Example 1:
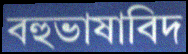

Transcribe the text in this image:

বহুভাষাবিদ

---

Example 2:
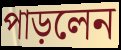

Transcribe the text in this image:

পাড়লেন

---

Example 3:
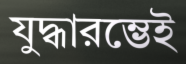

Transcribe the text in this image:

যুদ্ধারম্ভেই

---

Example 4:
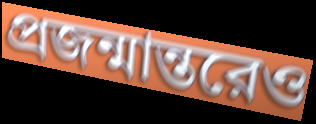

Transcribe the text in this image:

প্রজন্মান্তরেও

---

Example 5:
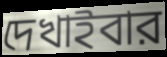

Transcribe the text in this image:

দেখাইবার